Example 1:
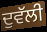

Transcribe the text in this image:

ਦੁਵੱਲੀ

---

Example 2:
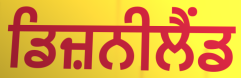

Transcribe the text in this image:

ਡਿਜ਼ਨੀਲੈਂਡ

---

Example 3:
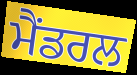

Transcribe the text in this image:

ਮੈਂਡਰਲ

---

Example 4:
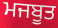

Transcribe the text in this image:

ਮਜਬੂਤ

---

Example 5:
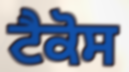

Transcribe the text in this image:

ਟੈਕੋਸ